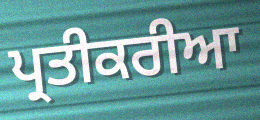
ਪ੍ਰਤੀਕਰੀਆ